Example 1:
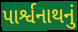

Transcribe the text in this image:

પાર્શ્વનાથનું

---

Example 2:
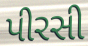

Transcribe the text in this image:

પીરસી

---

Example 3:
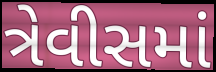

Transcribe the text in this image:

ત્રેવીસમાં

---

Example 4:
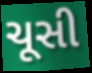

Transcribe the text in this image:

ચૂસી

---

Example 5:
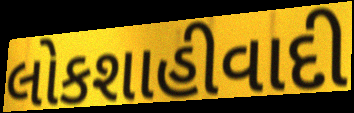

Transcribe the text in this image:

લોકશાહીવાદી